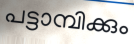
പട്ടാമ്പിക്കും